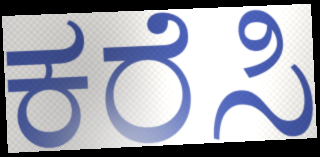
ಕರೆಸಿ